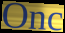
Onc